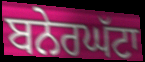
ਬਨੇਰਘੱਟਾ